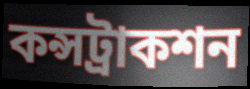
কন্সট্রাকশন